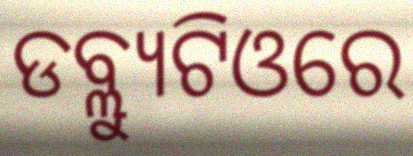
ଡବ୍ଲ୍ୟୁଟିଓରେ